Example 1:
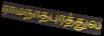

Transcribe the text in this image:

ராமநாதபுரத்துல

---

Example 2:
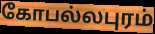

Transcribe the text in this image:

கோபல்லபுரம்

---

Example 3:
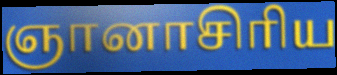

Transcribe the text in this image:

ஞானாசிரிய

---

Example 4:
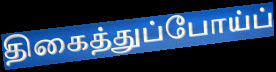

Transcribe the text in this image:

திகைத்துப்போய்ப்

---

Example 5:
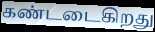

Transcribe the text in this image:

கண்டடைகிறது